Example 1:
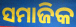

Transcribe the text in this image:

ସମାଜିକ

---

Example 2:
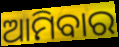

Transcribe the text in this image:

ଆମିବାର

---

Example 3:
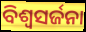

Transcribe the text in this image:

ବିଶ୍ଵସର୍ଜନା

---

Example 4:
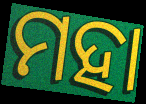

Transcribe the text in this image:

ମହା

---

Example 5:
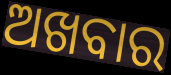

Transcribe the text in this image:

ଅଖବାର